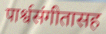
पार्श्वसंगीतासह